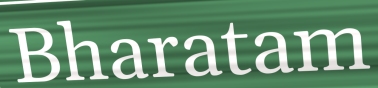
Bharatam